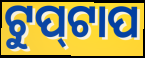
ଟୁପ୍‌ଟାପ